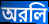
অরলি